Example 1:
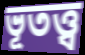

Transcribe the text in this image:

ভূতত্ত্ব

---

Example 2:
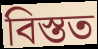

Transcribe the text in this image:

বিস্তত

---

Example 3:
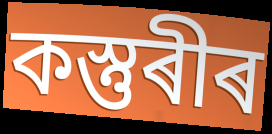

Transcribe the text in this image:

কস্তুৰীৰ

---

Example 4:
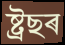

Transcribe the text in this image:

ষ্ট্ৰছৰ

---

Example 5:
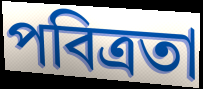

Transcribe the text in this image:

পবিত্ৰতা